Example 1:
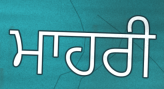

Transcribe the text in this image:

ਮਾਹਰੀ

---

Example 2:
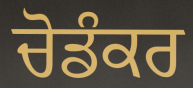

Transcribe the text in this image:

ਚੋਡੰਕਰ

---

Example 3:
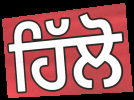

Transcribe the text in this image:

ਹਿੱਲੋ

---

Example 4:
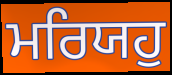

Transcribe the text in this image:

ਮਰਿਯਹੁ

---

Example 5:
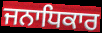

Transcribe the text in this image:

ਜਨਾਧਿਕਾਰ